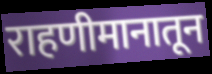
राहणीमानातून